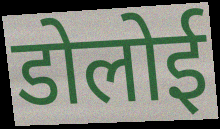
डोलोई